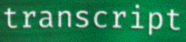
transcript